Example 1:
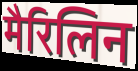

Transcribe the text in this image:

मैरिलिन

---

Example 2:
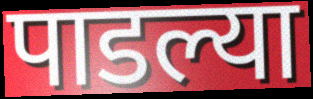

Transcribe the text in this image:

पाडल्या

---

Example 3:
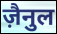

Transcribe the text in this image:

ज़ैनुल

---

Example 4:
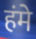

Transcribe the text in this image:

हंमे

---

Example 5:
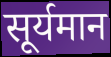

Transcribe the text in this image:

सूर्यमान